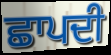
ਛਾਪਦੀ